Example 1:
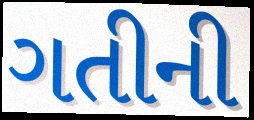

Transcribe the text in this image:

ગતીની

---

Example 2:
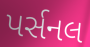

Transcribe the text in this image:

પર્સનલ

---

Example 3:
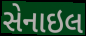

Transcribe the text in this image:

સેનાઇલ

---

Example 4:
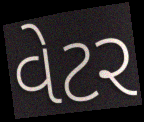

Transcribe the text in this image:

વેટર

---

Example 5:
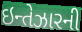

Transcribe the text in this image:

ઇન્તેઝારની